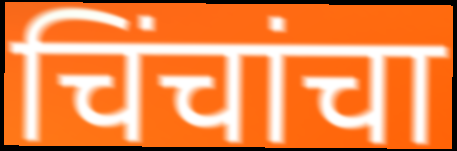
चिंचांचा